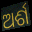
ଅର୍ଶ